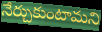
నేర్చుకుంటామని